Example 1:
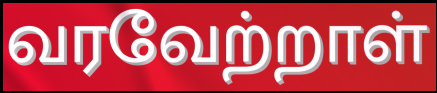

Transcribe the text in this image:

வரவேற்றாள்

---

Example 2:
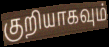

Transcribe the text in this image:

குறியாகவும்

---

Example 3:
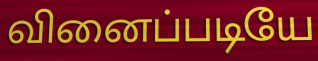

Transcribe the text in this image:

வினைப்படியே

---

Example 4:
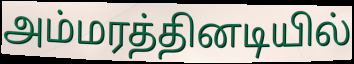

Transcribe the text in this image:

அம்மரத்தினடியில்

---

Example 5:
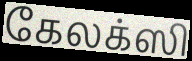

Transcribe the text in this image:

கேலக்ஸி